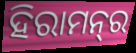
ହିରାମନ୍‍ର